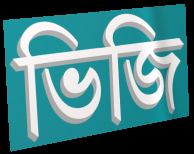
ভিজি